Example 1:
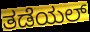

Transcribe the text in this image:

ತಡೆಯಲ್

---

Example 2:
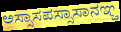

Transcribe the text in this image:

ಅಸ್ಸಾಸಪಸ್ಸಾಸಾನಞ್ಚ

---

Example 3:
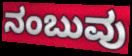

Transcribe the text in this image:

ನಂಬುವು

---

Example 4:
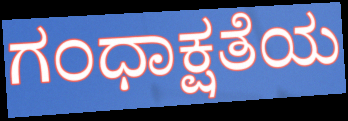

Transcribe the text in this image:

ಗಂಧಾಕ್ಷತೆಯ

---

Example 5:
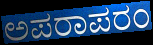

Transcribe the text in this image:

ಅಪರಾಪರಂ